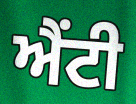
ਐਂਟੀ